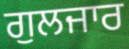
ਗੁਲਜਾਰ